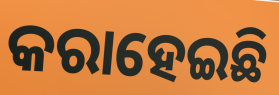
କରାହେଇଛି